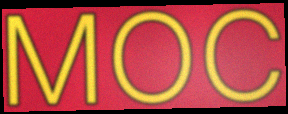
MOC